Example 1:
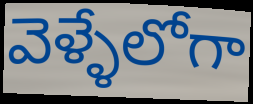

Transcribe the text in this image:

వెళ్ళేలోగా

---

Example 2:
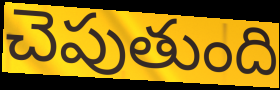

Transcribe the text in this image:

చెపుతుంది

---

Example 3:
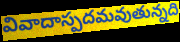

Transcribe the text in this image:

వివాదాస్పదమవుతున్నది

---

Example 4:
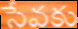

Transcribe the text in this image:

సేవకు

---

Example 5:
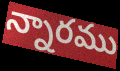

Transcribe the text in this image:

న్నారము